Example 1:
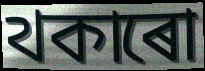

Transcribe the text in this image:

থকাৰো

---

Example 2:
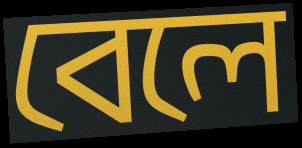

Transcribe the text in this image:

বেলে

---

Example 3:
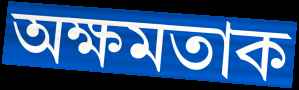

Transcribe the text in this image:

অক্ষমতাক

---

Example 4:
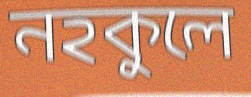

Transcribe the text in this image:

নহকুলে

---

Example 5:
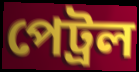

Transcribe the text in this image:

পেট্ৰল